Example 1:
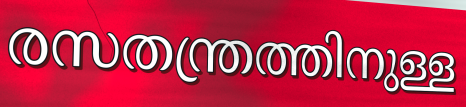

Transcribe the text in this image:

രസതന്ത്രത്തിനുള്ള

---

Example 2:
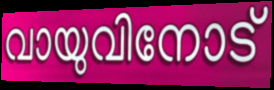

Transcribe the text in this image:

വായുവിനോട്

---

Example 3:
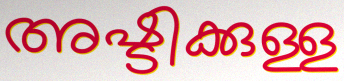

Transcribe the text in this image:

അഷ്ടിക്കുള്ള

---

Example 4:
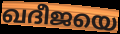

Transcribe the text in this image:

ഖദീജയെ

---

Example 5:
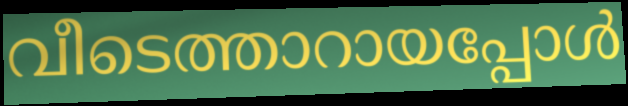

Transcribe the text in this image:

വീടെത്താറായപ്പോൾ